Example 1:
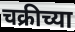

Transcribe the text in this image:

चक्रीच्या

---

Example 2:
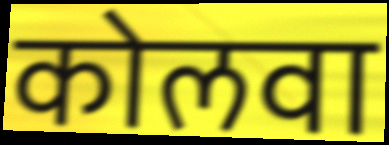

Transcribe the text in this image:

कोलवा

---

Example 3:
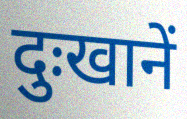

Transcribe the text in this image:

दुःखानें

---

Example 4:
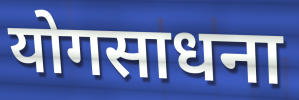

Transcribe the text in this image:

योगसाधना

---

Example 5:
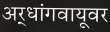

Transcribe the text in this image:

अर्धांगवायूवर